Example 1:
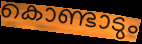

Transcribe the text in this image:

കൊണ്ടാടും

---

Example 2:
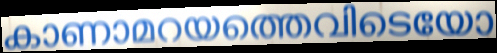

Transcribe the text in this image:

കാണാമറയത്തെവിടെയോ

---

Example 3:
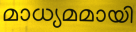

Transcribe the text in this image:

മാധ്യമമായി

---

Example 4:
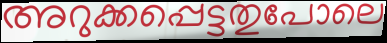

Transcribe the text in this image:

അറുക്കപ്പെട്ടതുപോലെ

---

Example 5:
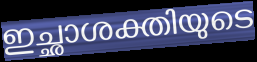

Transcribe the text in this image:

ഇച്ഛാശക്തിയുടെ